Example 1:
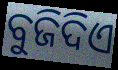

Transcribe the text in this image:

ବୁଜିଦିଏ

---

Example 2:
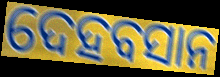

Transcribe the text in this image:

ଦେହବସାନ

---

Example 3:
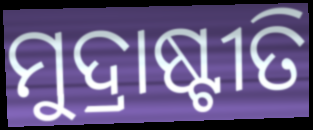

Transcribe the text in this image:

ମୁଦ୍ରାଷ୍ଟୀତି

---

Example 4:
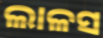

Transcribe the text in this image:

ଲାଳସ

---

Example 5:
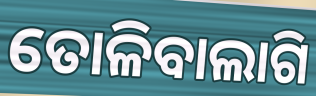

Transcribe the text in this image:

ତୋଳିବାଲାଗି